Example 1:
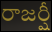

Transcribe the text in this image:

రాజర్షీ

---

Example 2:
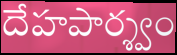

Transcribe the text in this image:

దేహపార్శ్వం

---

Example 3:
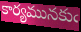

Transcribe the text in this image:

కార్యమునకుఁ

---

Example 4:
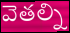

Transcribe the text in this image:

వెతల్ని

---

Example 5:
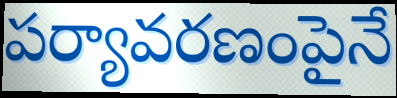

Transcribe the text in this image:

పర్యావరణంపైనే